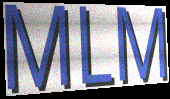
MLM